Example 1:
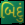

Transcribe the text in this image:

બિદું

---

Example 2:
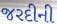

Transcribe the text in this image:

જરદીની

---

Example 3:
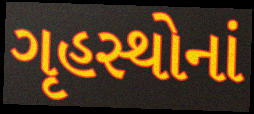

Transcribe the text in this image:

ગૃહસ્થોનાં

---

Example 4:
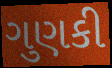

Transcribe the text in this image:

ગુણકી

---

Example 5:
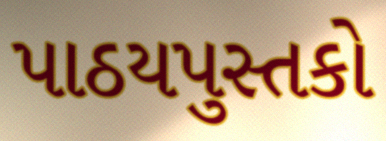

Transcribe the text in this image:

પાઠયપુસ્તકો